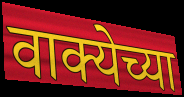
वाक्येच्या